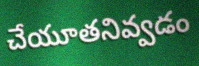
చేయూతనివ్వడం